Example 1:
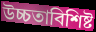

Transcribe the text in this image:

উচ্চতাবিশিষ্ট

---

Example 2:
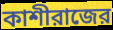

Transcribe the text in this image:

কাশীরাজের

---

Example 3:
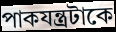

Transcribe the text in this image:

পাকযন্ত্রটাকে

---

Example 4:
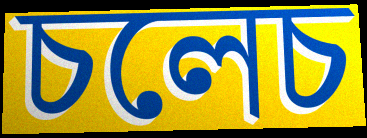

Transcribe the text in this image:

চলেচ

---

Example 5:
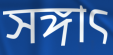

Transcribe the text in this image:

সঙ্গাৎ